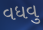
વધવુ